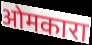
ओमकारा